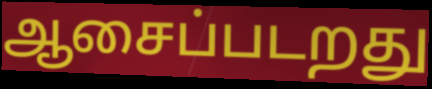
ஆசைப்படறது